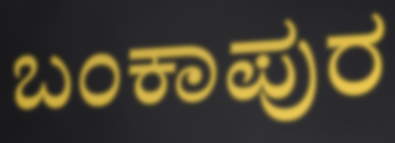
ಬಂಕಾಪುರ